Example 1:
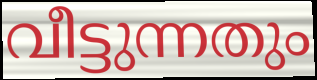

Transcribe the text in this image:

വീട്ടുന്നതും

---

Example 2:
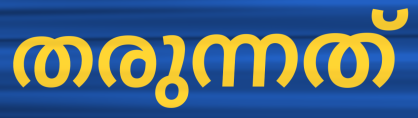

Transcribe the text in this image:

തരുന്നത്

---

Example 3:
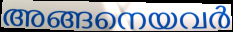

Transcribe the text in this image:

അങ്ങനെയവർ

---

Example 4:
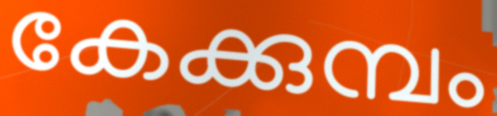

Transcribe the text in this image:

കേക്കുമ്പം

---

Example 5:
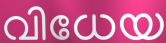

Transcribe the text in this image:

വിധേയ